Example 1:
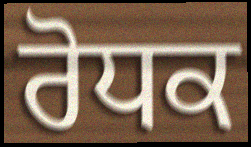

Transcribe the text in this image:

ਰੋਧਕ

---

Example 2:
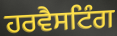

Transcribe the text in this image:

ਹਰਵੈਸਟਿੰਗ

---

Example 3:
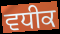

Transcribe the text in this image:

ਵਧੀਕ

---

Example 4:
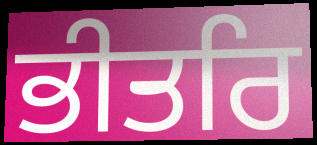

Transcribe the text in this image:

ਭੀਤਰਿ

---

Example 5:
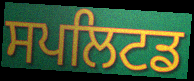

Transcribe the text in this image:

ਸਪਲਿਟਡ